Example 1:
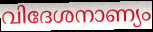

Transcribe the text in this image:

വിദേശനാണ്യം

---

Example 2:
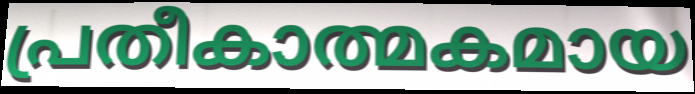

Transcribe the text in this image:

പ്രതീകാത്മകമായ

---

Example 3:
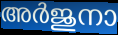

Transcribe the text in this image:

അർജുനാ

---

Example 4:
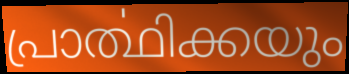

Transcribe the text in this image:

പ്രാൎത്ഥിക്കയും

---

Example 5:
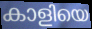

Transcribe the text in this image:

കാളിയെ